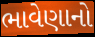
ભાવેણાનો